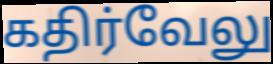
கதிர்வேலு